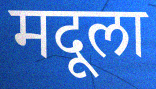
मदूला